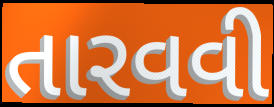
તારવવી